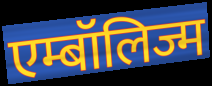
एम्बॉलिज्म